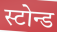
स्टोन्ड